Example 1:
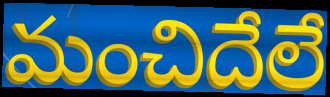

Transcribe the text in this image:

మంచిదేలే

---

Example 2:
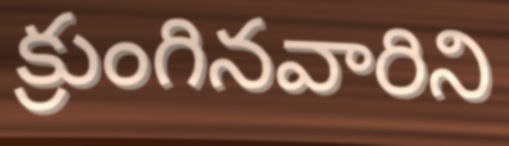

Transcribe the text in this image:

క్రుంగినవారిని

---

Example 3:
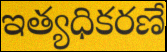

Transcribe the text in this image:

ఇత్యధికరణే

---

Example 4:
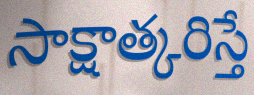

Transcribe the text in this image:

సాక్షాత్కరిస్తే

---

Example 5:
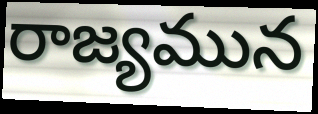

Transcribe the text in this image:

రాజ్యమున